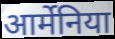
आर्मेनिया